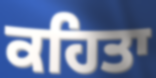
ਕਹਿਤਾ